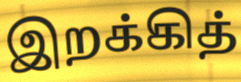
இறக்கித்